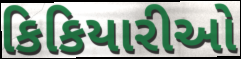
કિકિયારીઓ